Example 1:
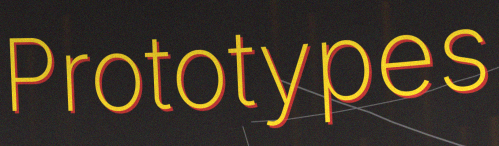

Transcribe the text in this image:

Prototypes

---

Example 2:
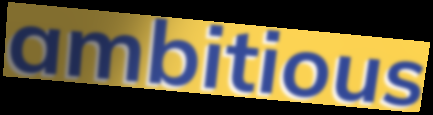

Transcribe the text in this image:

ambitious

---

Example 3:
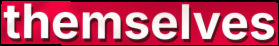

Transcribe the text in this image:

themselves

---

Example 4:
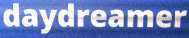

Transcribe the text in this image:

daydreamer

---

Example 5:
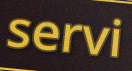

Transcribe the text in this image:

servi